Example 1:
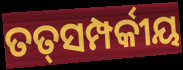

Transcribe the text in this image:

ତତ୍‍ସମ୍ପର୍କୀୟ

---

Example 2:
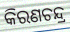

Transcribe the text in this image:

କିରଣଚନ୍ଦ୍ର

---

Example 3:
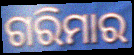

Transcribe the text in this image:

ଗରିମାର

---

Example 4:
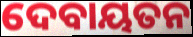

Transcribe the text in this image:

ଦେବାୟତନ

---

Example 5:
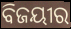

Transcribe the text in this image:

ବିଜୟୀର